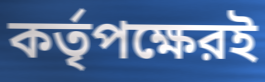
কর্তৃপক্ষেরই